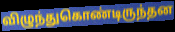
விழுந்துகொண்டிருந்தன